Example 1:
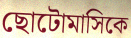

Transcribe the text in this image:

ছোটোমাসিকে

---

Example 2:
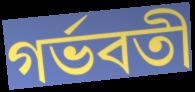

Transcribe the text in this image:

গর্ভবতী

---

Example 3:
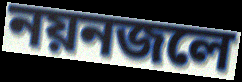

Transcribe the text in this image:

নয়নজলে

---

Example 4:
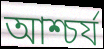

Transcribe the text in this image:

আশ্চর্য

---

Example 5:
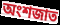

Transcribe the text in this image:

অংশজাত